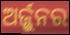
ଅର୍ଜ୍ଜୁନର